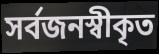
সর্বজনস্বীকৃত